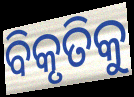
ବିକୃତିକୁ